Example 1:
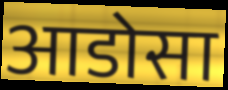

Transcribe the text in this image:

आडोसा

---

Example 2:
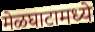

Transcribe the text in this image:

मेळघाटामध्ये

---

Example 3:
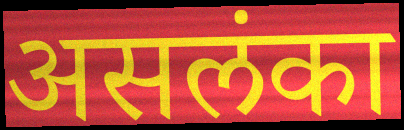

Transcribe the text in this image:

असलंका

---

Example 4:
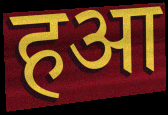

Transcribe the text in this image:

हआ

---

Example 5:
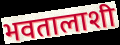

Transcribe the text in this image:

भवतालाशी